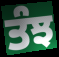
ਤੰਝ